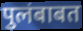
पुलंबाबत